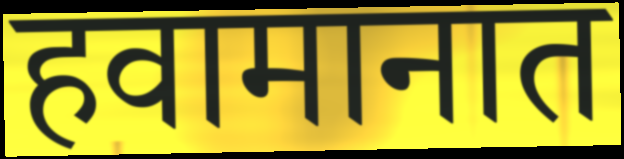
हवामानात